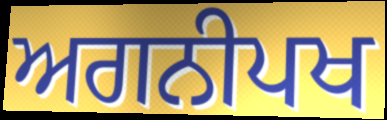
ਅਗਨੀਪਖ